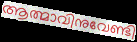
ആത്മാവിനുവേണ്ടി